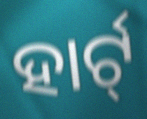
ହାର୍ଟ୍